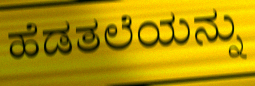
ಹೆಡತಲೆಯನ್ನು